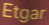
Etgar